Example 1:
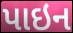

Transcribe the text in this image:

પાઇન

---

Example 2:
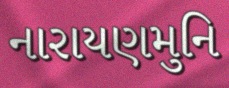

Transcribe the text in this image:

નારાયણમુનિ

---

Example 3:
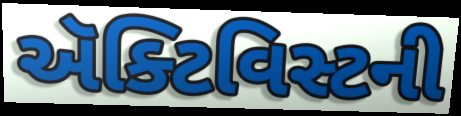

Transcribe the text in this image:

ઍક્ટિવિસ્ટની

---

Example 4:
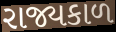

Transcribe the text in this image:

રાજ્યકાળ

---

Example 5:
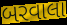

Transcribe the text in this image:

બરવાલા